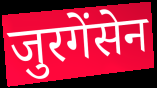
जुरगेंसेन